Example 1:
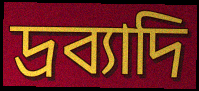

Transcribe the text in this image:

দ্রব্যাদি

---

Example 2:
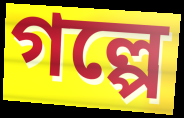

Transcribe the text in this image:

গল্পে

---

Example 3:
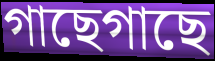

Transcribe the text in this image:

গাছেগাছে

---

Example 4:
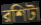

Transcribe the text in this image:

রশিটা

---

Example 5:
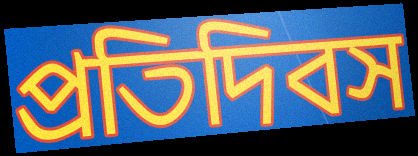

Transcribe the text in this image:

প্রতিদিবস